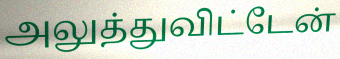
அலுத்துவிட்டேன்